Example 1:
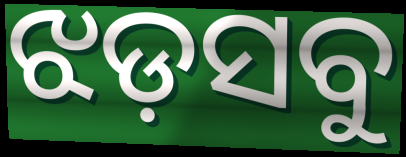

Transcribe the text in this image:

ଝଡ଼ସବୁ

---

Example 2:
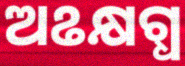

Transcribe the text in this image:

ଅଌକ୍ଷଗ୍ଧ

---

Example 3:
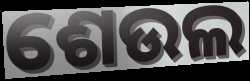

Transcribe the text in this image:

ଶେଉଲ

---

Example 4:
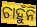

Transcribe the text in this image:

ଚାହୁଁନି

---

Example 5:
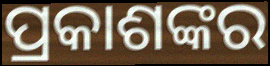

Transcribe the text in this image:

ପ୍ରକାଶଙ୍କର